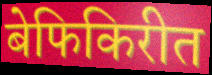
बेफिकिरीत